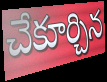
చేకూర్చిన